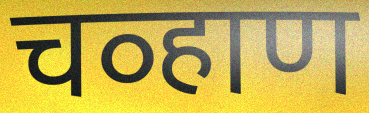
चव्हाण